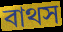
বাথস